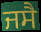
ਜਸੈ